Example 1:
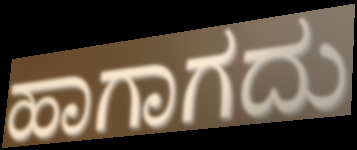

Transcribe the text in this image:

ಹಾಗಾಗದು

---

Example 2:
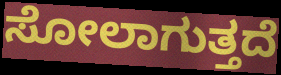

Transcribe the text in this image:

ಸೋಲಾಗುತ್ತದೆ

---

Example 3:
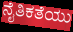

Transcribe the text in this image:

ನೈತಿಕತೆಯು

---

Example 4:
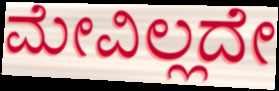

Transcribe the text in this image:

ಮೇವಿಲ್ಲದೇ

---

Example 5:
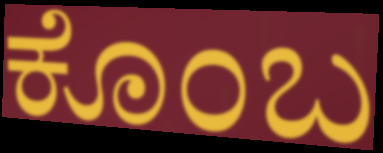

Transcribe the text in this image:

ಕೊಂಬ